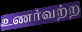
உணர்வற்ற